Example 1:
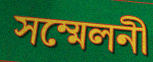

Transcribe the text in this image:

সম্মেলনী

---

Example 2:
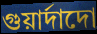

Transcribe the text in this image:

গুয়ার্দাদো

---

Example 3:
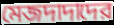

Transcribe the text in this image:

মেজদাদাদের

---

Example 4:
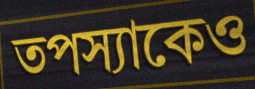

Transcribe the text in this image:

তপস্যাকেও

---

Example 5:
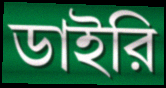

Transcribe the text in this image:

ডাইরি